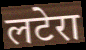
लटेरा